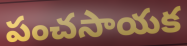
పంచసాయక